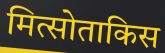
मित्सोताकिस